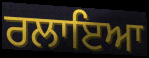
ਰਲਾਇਆ